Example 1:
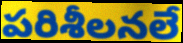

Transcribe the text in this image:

పరిశీలనలే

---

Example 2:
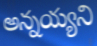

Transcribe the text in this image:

అన్నయ్యని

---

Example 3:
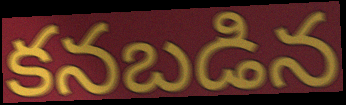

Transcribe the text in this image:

కనబడిన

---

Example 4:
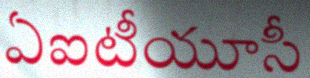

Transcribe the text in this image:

ఏఐటీయూసీ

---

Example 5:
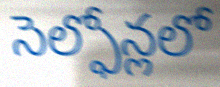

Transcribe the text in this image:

సెల్ఫోన్లలో